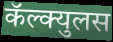
कॅल्क्युलस